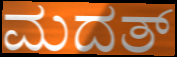
ಮದತ್